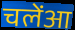
चलेंआ